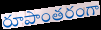
రూపాంతరంగా